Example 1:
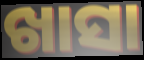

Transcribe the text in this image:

ଖାସା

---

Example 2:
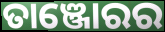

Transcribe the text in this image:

ତାଞ୍ଜୋରର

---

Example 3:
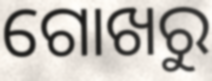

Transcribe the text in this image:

ଗୋଖରୁ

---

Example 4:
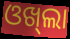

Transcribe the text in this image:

ଓଖ୍‌ଲା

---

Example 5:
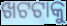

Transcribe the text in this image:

ଖଟଟାକୁ